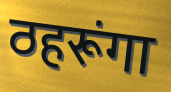
ठहरूंगा